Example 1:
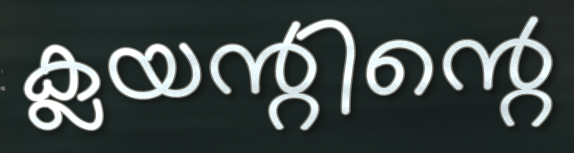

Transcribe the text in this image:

ക്ലയന്റിന്റെ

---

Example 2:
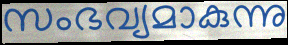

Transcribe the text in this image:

സംഭവ്യമാകുന്നു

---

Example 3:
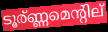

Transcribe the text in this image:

ടൂര്ണ്ണമെന്റില്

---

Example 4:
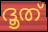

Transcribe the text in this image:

ദൂത്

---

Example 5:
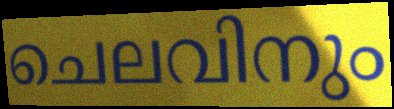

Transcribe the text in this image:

ചെലവിനും